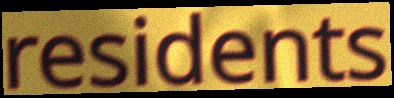
residents